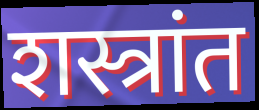
शस्त्रांत